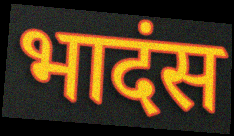
भादंस